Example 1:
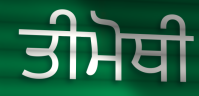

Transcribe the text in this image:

ਤੀਮੋਥੀ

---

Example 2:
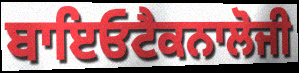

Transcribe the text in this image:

ਬਾਇਓਟੈਕਨਾਲੋਜੀ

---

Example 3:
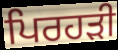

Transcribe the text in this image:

ਪਿਰਹੜੀ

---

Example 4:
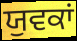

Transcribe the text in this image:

ਯੁਵਕਾਂ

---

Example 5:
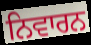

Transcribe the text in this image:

ਨਿਵਾਰਨ